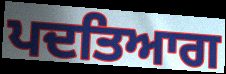
ਪਦਤਿਆਗ